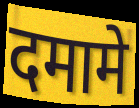
दमामे